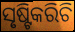
ସୃଷ୍ଟିକରିଚି